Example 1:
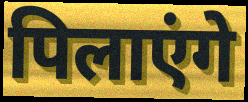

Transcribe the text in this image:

पिलाएंगे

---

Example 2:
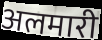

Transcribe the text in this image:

अलमारी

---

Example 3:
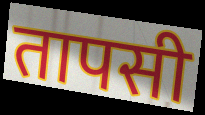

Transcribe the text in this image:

तापसी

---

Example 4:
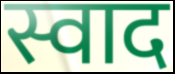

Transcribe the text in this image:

स्‍वाद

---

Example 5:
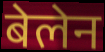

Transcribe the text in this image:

बेलेन